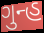
ગુન્હ